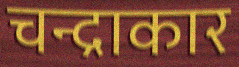
चन्द्राकार